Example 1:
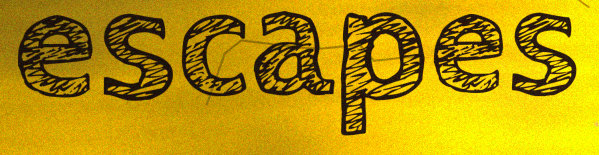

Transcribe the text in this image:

escapes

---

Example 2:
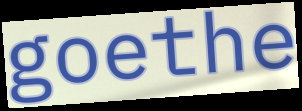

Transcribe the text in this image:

goethe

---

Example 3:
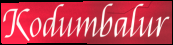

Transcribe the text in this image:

Kodumbalur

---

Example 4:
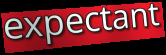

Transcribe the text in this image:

expectant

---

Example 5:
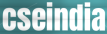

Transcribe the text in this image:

cseindia